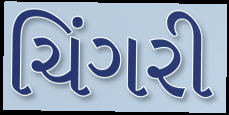
ચિંગરી